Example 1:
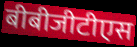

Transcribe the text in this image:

बीबीजीटीएस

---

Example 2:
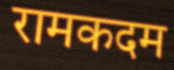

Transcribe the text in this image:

रामकदम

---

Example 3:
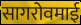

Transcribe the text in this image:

सागरोवमाई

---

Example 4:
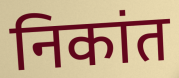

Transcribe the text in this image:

निकांत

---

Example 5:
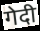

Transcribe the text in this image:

गेदी